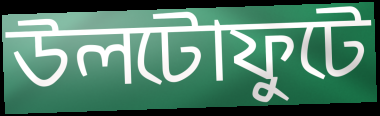
উলটোফুটে